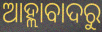
ଆହ୍ଲାବାଦରୁ